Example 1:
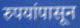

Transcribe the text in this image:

रुपयांपासून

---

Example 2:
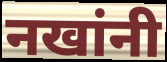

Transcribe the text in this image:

नखांनी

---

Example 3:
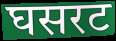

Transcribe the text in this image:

घसरट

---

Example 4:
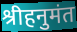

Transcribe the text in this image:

श्रीहनुमंत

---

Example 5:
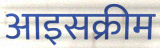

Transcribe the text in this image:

आइसक्रीम